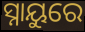
ସ୍ନାୟୁରେ